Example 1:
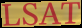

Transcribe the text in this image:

LSAT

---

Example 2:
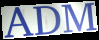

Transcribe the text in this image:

ADM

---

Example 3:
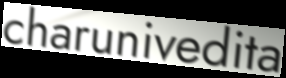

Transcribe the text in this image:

charunivedita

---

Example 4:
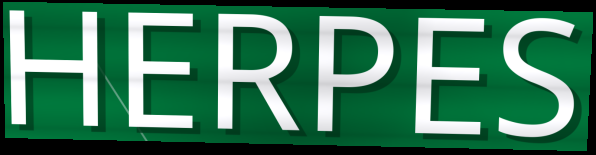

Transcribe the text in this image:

HERPES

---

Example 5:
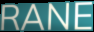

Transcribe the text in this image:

RANE